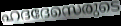
ഹദദേസെരുടെ